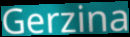
Gerzina